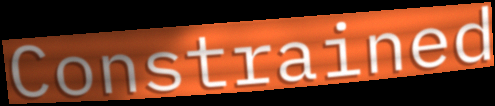
Constrained